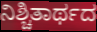
ನಿಶ್ಚಿತಾರ್ಥದ